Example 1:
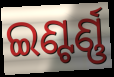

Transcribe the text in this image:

ଇଣ୍ଟର୍ଣ୍ଣ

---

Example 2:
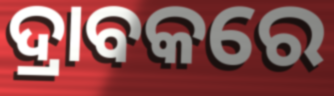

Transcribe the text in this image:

ଦ୍ରାବକରେ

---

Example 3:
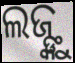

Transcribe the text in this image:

ଲଜ୍ଙ୍କୁ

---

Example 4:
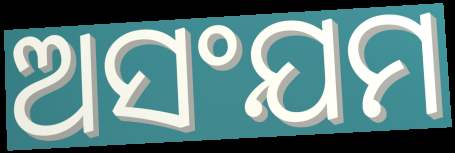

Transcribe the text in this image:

ଅସଂଯମ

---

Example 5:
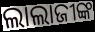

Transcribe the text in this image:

ଲାଲାଜୀଙ୍କ